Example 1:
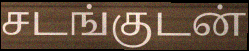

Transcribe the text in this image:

சடங்குடன்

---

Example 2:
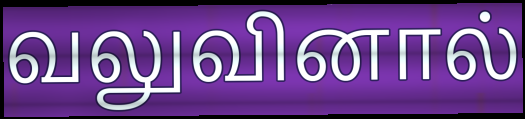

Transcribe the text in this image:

வலுவினால்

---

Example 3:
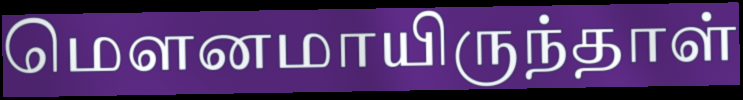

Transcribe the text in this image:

மௌனமாயிருந்தாள்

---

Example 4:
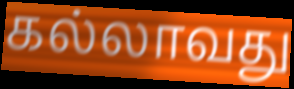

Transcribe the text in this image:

கல்லாவது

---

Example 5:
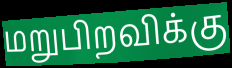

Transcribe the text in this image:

மறுபிறவிக்கு